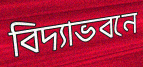
বিদ্যাভবনে